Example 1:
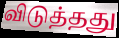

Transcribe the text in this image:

விடுத்தது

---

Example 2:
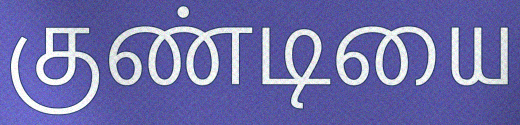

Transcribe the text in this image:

குண்டியை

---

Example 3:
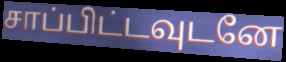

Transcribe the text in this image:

சாப்பிட்டவுடனே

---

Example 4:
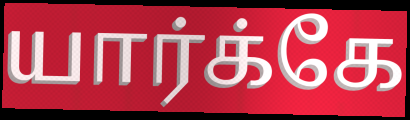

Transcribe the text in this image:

யார்க்கே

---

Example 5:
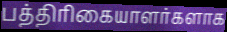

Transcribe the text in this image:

பத்திரிகையாளர்களாக